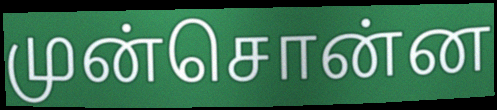
முன்சொன்ன